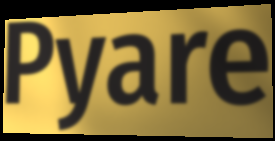
Pyare